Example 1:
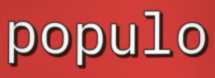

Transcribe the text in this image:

populo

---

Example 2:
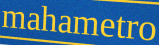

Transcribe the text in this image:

mahametro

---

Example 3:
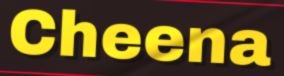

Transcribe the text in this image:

Cheena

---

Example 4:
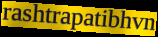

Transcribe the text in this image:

rashtrapatibhvn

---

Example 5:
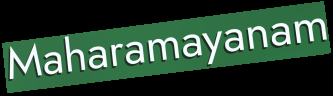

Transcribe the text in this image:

Maharamayanam